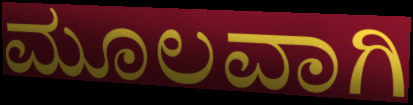
ಮೂಲವಾಗಿ